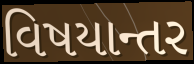
વિષયાન્તર